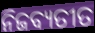
ନିଜବ୍ୟତୀତ